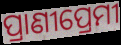
ପ୍ରାଣୀପ୍ରେମୀ